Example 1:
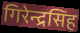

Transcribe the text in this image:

गिरेन्द्रसिंह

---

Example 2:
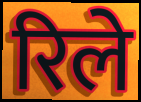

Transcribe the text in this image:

रिले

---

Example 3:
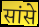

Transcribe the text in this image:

सांसे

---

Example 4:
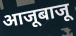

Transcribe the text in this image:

आजूबाजू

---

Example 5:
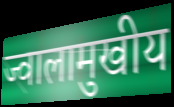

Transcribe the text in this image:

ज्वालामुखीय